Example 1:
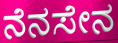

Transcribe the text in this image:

ನೆನಸೇನ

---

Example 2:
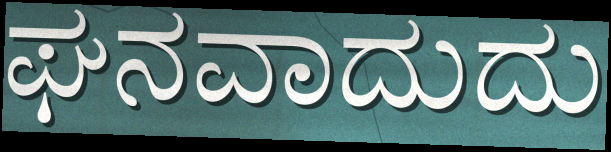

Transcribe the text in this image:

ಘನವಾದುದು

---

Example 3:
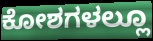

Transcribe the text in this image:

ಕೋಶಗಳಲ್ಲೂ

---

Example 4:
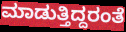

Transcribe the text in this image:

ಮಾಡುತ್ತಿದ್ದರಂತೆ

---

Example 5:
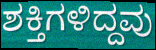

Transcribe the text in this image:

ಶಕ್ತಿಗಳಿದ್ದವು